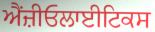
ਐਂਜ਼ੀਓਲਾਈਟਿਕਸ